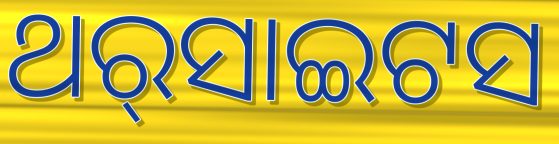
ଥର୍‌ସାଇଟସ